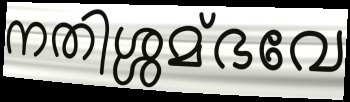
നതിശ്ശമ്ഭവേ